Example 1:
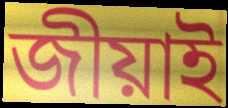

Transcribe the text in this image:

জীয়াই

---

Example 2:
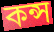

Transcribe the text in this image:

কন্স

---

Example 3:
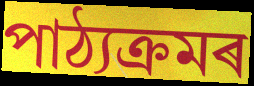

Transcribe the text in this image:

পাঠ্যক্ৰমৰ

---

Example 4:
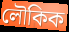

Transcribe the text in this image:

লৌকিক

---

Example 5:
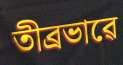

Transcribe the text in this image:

তীব্ৰভাৱে